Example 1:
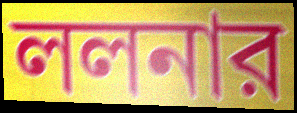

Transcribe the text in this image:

ললনার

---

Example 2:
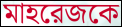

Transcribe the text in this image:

মাহরেজকে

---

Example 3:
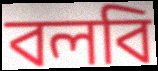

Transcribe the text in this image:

বলবি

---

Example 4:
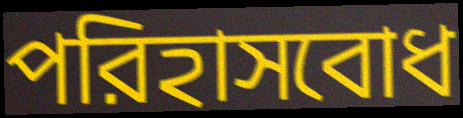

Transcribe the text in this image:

পরিহাসবোধ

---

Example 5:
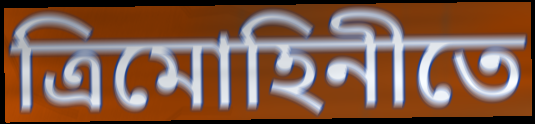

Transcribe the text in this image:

ত্রিমোহিনীতে